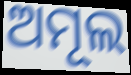
ଅମୂଲ